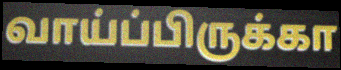
வாய்ப்பிருக்கா